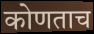
कोणताच